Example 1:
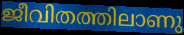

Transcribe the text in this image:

ജീവിതത്തിലാണു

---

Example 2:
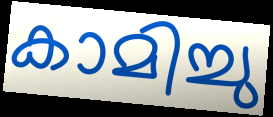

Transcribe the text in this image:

കാമിച്ചു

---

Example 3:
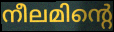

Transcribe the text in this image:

നീലമിന്റെ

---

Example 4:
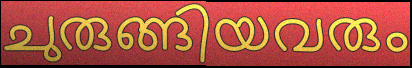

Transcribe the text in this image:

ചുരുങ്ങിയവരും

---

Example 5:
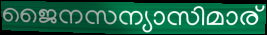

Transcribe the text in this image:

ജൈനസന്യാസിമാര്